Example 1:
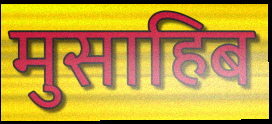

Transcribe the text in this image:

मुसाहिब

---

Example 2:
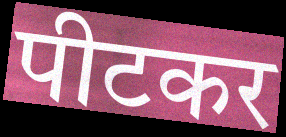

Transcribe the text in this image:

पीटकर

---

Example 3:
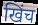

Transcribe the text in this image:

खिंच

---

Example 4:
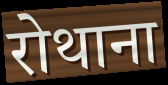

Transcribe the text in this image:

रोथाना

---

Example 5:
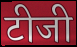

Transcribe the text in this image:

टीजी